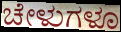
ಚೇಳುಗಳೂ